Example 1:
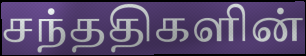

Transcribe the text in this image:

சந்ததிகளின்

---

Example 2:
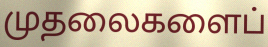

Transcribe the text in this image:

முதலைகளைப்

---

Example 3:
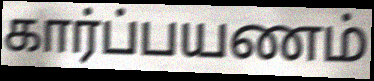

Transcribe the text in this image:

கார்ப்பயணம்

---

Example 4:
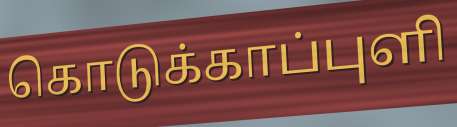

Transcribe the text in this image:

கொடுக்காப்புளி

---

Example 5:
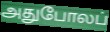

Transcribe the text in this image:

அதுபோலப்